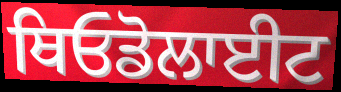
ਥਿਓਡੋਲਾਈਟ